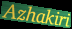
Azhakiri